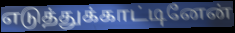
எடுத்துக்காட்டினேன்